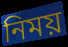
নিময়